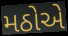
મઠોએ